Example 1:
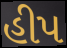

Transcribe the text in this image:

હીપ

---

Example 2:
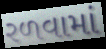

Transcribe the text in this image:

રળવામાં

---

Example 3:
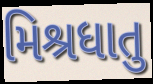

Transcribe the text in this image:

મિશ્રધાતુ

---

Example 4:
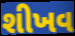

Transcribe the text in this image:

શીખવ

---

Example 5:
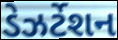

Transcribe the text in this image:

ડેઝર્ટેશન